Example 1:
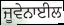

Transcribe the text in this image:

ਜੂਵੇਨਾਈਲ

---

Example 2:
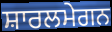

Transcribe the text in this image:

ਸ਼ਾਰਲਮੇਗਨ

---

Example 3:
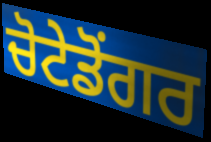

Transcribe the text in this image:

ਚੋਟੇਡੋਂਗਰ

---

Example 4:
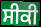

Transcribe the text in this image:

ਸੀਕੀ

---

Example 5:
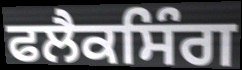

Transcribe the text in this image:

ਫਲੈਕਸਿੰਗ